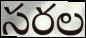
సరల